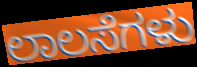
ಲಾಲಸೆಗಳು